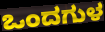
ಒಂದಗುಳ